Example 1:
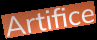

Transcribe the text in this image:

Artifice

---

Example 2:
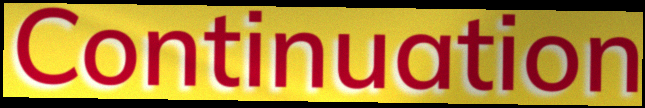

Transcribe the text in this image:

Continuation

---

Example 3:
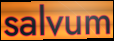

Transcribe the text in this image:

salvum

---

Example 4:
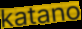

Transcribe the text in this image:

katano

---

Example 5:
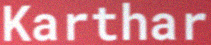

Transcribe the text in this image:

Karthar